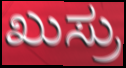
ಖುಸ್ರು